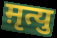
म़ृत्यु